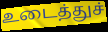
உடைத்துச்